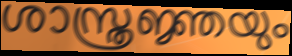
ശാസ്ത്രജ്ഞയും